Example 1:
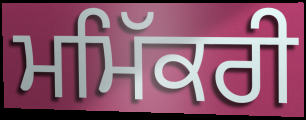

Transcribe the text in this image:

ਮਮਿੱਕਰੀ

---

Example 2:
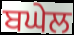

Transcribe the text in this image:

ਬਘੇਲ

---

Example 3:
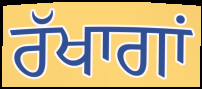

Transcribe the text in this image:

ਰੱਖਾਗਾਂ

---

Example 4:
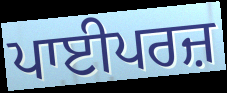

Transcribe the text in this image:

ਪਾਈਪਰਜ਼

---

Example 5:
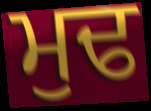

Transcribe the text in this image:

ਮੁਢ